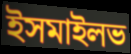
ইসমাইলভ